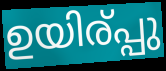
ഉയിര്പ്പു